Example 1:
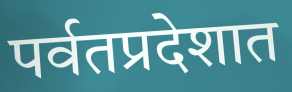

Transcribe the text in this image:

पर्वतप्रदेशात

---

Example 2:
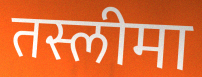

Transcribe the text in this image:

तस्लीमा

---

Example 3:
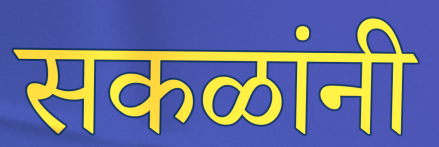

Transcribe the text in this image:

सकळांनी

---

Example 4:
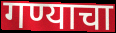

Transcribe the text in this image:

गण्याचा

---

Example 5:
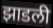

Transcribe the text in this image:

झाडली